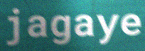
jagaye